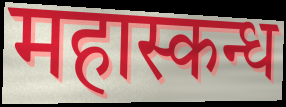
महास्कन्ध